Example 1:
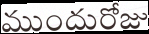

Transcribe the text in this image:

ముందురోజు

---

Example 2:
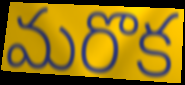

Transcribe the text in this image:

మరొక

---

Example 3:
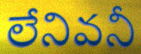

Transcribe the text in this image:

లేనివనీ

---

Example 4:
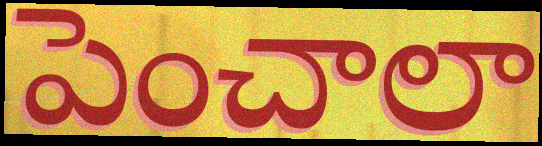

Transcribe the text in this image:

పెంచాలా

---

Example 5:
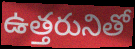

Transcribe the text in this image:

ఉత్తరునితో